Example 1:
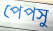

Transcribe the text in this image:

পেপসু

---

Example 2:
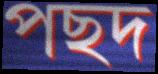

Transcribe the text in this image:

পছদ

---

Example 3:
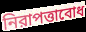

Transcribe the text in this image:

নিরাপত্তাবোধ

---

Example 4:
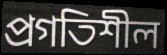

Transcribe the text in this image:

প্রগতিশীল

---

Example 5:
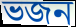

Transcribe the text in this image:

ভজন